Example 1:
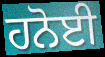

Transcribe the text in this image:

ਹਨੋਈ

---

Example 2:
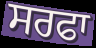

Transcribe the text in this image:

ਸਰਫਾ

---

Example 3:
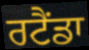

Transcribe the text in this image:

ਰਟੈਂਡਾ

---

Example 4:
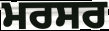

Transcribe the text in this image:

ਮਰਸਰ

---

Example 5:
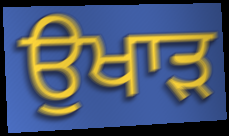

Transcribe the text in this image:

ਉਖਾੜ